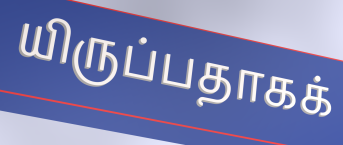
யிருப்பதாகக்